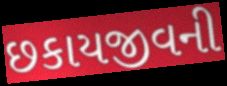
છકાયજીવની